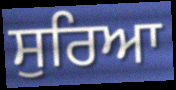
ਸੁਰਿਆ